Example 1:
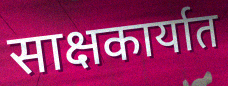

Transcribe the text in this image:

साक्षकार्यात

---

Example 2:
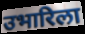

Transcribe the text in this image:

उभारिला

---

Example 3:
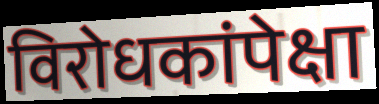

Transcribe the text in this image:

विरोधकांपेक्षा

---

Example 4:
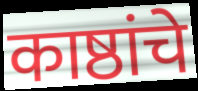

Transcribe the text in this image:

काष्ठांचे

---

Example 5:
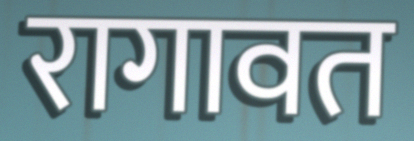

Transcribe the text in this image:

रागावत